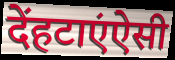
देंहटाएंऐसी